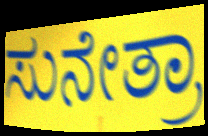
ಸುನೇತ್ರಾ